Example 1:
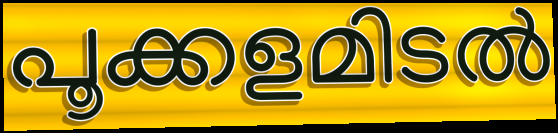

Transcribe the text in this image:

പൂക്കളമിടൽ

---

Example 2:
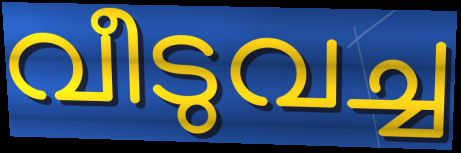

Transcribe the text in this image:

വീടുവച്ച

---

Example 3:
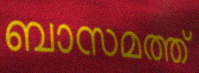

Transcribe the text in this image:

ബാസമത്ത്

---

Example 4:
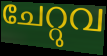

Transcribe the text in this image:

ചേറ്റുവ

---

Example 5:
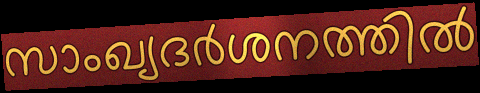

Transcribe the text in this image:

സാംഖ്യദർശനത്തിൽ